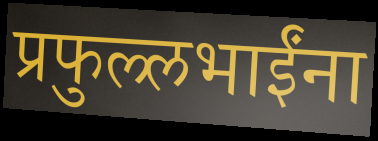
प्रफुल्लभाईंना